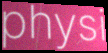
physi